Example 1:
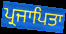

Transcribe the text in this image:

ਪ੍ਰਜਾਪਿਤਾ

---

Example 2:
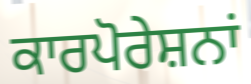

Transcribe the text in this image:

ਕਾਰਪੋਰੇਸ਼ਨਾਂ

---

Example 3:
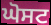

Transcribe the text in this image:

ਘੋਸਟ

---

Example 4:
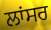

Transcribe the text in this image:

ਲਾਂਸਰ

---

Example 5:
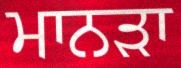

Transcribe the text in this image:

ਮਾਨੜਾ